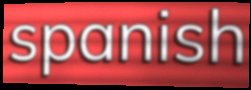
spanish